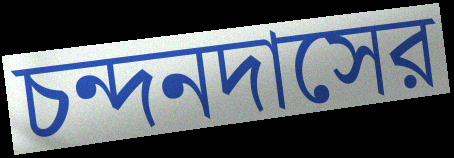
চন্দনদাসের